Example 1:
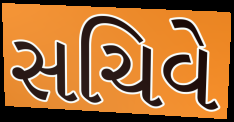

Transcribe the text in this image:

સચિવે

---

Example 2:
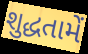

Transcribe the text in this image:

શુદ્ધતામેં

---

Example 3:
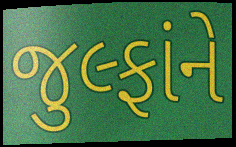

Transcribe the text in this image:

જુલ્ફાંને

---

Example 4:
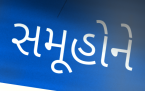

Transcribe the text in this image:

સમૂહોને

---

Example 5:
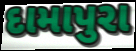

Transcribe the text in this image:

દામાપુરા